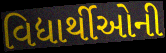
વિદ્યાર્થીઓની